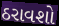
ઠરાવશો